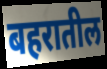
बहरातील